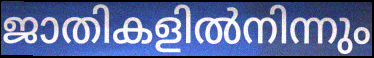
ജാതികളിൽനിന്നും